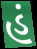
હં